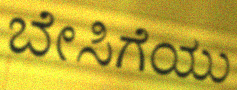
ಬೇಸಿಗೆಯು